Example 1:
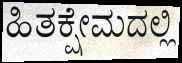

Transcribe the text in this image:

ಹಿತಕ್ಷೇಮದಲ್ಲಿ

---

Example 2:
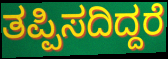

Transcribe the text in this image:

ತಪ್ಪಿಸದಿದ್ದರೆ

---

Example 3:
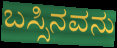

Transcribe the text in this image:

ಬಸ್ಸಿನವನು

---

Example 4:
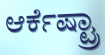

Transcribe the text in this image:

ಆರ್ಕೆಷ್ಟ್ರಾ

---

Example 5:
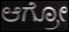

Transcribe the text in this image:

ಆಗ್ರೋ